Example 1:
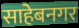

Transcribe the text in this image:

साहेबनगर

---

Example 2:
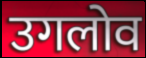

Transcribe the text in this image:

उगलोव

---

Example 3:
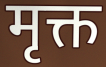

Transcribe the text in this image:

मृक्त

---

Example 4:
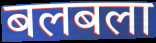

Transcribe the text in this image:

बलबला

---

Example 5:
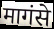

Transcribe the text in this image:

मागंसे